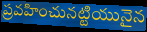
ప్రవహించునట్టియునైన